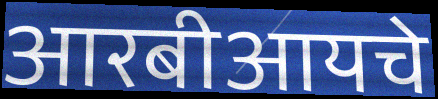
आरबीआयचे